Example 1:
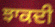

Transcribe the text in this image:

ਝਾਕਦੀ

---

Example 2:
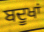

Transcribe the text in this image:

ਬਦੂਖਾਂ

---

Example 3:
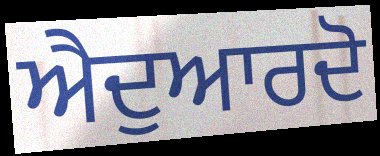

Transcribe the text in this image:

ਐਦੁਆਰਦੋ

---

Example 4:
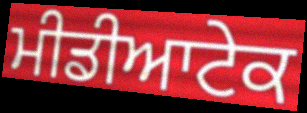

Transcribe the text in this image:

ਮੀਡੀਆਟੇਕ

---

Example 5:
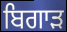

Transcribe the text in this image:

ਬਿਗਾੜ